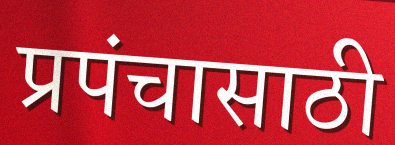
प्रपंचासाठी